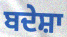
ਬਦੇਸ਼ਾ